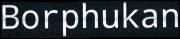
Borphukan